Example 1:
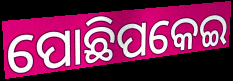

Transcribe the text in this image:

ପୋଛିପକେଇ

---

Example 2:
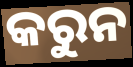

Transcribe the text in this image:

କରୁନ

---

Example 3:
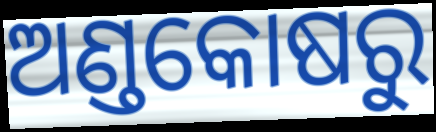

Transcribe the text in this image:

ଅଣ୍ଡକୋଷରୁ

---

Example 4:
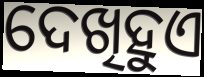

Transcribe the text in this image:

ଦେଖିହୁଏ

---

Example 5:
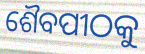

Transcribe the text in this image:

ଶୈବପୀଠକୁ